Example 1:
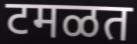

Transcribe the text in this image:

टमळत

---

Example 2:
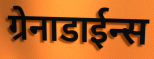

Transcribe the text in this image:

ग्रेनाडाईन्स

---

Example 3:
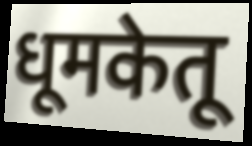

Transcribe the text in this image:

धूमकेतू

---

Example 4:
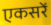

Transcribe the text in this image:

एकसरें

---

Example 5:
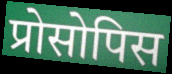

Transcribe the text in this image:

प्रोसोपिस